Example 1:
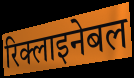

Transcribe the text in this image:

रिक्लाइनेबल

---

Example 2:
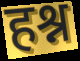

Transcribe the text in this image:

हश्न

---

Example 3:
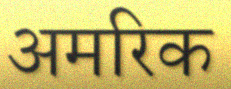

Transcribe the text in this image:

अमरिक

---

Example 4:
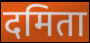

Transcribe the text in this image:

दमिता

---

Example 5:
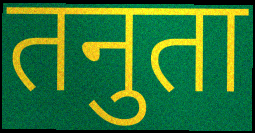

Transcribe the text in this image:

तनुता